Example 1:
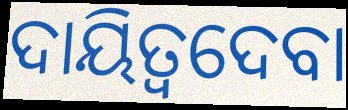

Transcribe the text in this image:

ଦାୟିତ୍ୱଦେବା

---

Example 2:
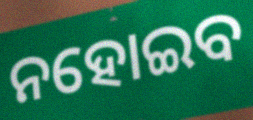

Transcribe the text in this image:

ନହୋଇବ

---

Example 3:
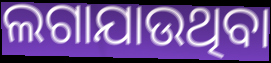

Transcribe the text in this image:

ଲଗାଯାଉଥିବା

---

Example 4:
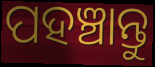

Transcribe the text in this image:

ପହଞ୍ଚାନ୍ତୁ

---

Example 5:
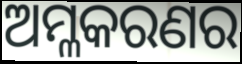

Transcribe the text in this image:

ଅମ୍ଳକରଣର